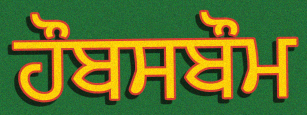
ਹੌਬਸਬੌਮ